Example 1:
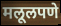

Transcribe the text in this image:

मलूलपणे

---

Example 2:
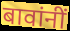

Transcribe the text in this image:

बावांनीं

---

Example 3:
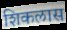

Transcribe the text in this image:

शिकलास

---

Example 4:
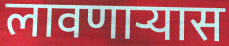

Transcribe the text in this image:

लावणाऱ्यास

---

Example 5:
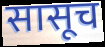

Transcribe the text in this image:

सासूच